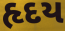
હૃદય